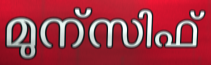
മുന്സിഫ്